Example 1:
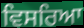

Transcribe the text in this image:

ਵਿਸਰਿਆ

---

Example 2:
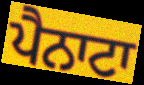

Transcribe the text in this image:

ਪੈਨਾਟਾ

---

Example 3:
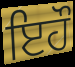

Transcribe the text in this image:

ਇਹੌ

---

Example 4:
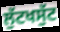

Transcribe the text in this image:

ਲੁੱਟਖਸੁੱਟ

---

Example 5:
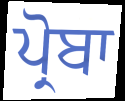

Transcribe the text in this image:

ਪ੍ਰੋਬਾ